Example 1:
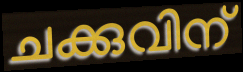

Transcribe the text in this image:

ചക്കുവിന്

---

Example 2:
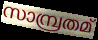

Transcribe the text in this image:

സാമ്പ്രതമ്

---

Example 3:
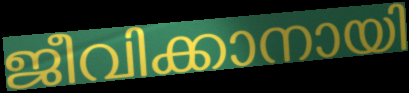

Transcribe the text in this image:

ജീവിക്കാനായി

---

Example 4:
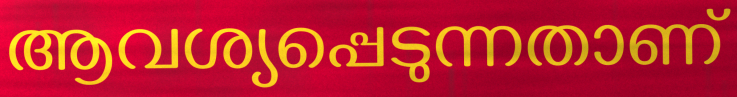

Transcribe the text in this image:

ആവശ്യപ്പെടുന്നതാണ്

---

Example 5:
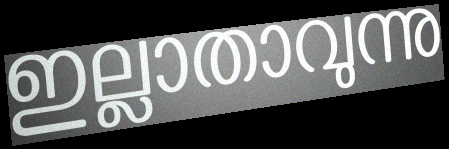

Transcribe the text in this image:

ഇല്ലാതാവുന്നു